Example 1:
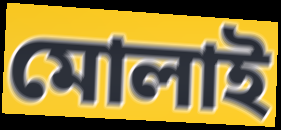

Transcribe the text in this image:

মোলাই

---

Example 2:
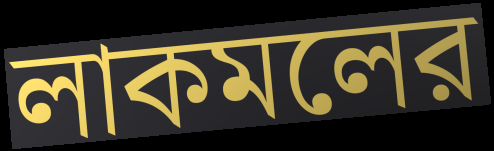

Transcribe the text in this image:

লাকমলের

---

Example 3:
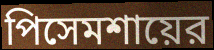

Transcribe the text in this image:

পিসেমশায়ের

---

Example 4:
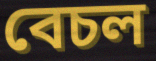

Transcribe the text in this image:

বেচল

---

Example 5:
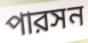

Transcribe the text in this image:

পারসন